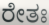
ರೇತಃ